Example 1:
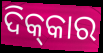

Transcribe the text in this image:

ଦିକ୍‌କାର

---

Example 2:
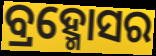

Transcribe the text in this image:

ବ୍ରହ୍ମୋସର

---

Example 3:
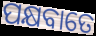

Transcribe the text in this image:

ପକ୍ଷବାତେ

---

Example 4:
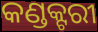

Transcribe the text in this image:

କଣ୍ଡକ୍ଟରୀ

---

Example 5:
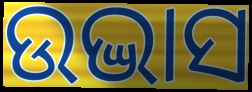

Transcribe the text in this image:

ଉଦ୍ଭାସ